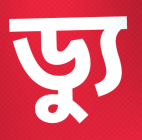
ড্যু